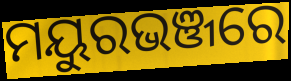
ମୟୁରଭଞ୍ଜରେ